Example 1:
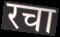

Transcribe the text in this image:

रचा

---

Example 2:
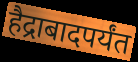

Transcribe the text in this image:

हैद्राबादपर्यंत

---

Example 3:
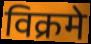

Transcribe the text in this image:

विक्रमे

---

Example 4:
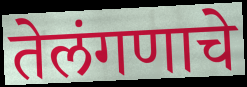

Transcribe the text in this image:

तेलंगणाचे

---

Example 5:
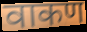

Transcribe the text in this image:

वाकण